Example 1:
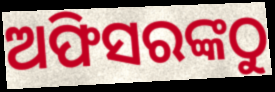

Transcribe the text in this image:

ଅଫିସରଙ୍କଠୁ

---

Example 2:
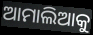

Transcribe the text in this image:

ଆମାଲିଆକୁ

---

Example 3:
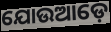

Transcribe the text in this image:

ଯୋଉଆଡ଼େ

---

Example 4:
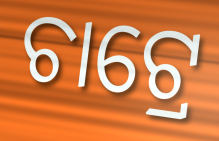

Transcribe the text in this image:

ଚାଟ୍ରେ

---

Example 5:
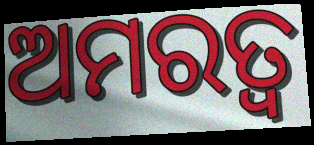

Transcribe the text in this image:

ଅମରତ୍ବ